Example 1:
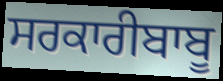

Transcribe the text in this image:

ਸਰਕਾਰੀਬਾਬੂ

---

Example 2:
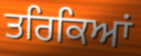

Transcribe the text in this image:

ਤਰਿਕਿਆਂ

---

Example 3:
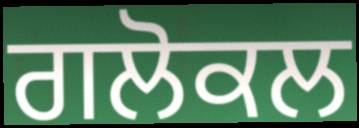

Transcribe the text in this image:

ਗਲੋਕਲ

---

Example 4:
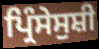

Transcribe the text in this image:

ਪ੍ਰਿੰਸੇਸੁਸ਼ੀ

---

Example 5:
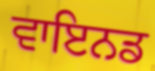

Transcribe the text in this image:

ਵਾਇਨਡ